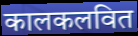
कालकलवित